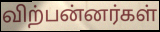
விற்பன்னர்கள்